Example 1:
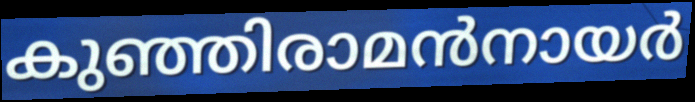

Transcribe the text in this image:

കുഞ്ഞിരാമൻനായർ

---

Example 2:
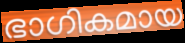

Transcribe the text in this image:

ഭാഗികമായ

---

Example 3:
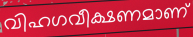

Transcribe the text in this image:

വിഹഗവീക്ഷണമാണ്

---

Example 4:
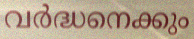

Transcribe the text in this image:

വർദ്ധനെക്കും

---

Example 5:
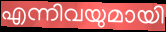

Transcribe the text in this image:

എന്നിവയുമായി